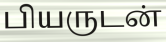
பியருடன்